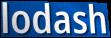
lodash